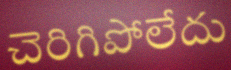
చెరిగిపోలేదు